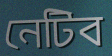
নেটিব